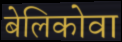
बेलिकोवा